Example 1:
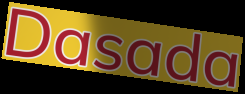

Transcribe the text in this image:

Dasada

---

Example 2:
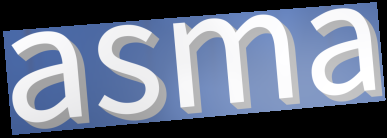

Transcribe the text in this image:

asma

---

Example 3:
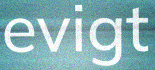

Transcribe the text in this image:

evigt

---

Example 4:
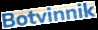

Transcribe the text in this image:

Botvinnik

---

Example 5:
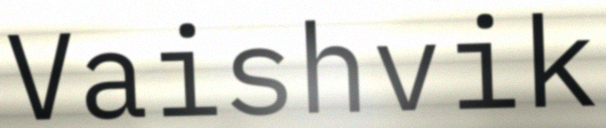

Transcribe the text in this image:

Vaishvik